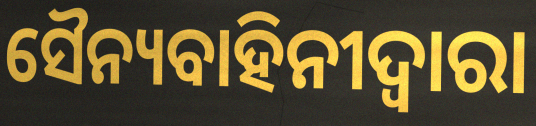
ସୈନ୍ୟବାହିନୀଦ୍ୱାରା